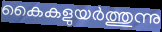
കൈകളുയർത്തുന്നു